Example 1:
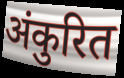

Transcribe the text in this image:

अंकुरित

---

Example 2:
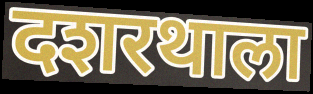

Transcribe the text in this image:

दशरथाला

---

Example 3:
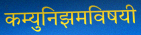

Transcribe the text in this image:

कम्युनिझमविषयी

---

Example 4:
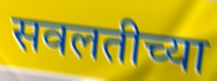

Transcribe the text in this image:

सवलतीच्या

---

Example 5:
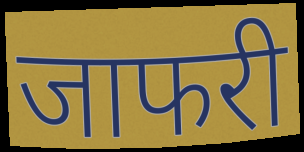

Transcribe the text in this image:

जाफरी